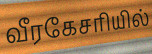
வீரகேசரியில்